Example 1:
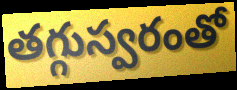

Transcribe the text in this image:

తగ్గుస్వరంతో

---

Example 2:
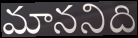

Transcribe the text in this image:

మాననిది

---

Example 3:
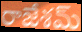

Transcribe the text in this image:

రాజేశమ్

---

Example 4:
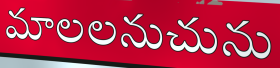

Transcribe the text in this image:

మాలలనుచును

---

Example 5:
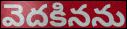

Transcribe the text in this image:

వెదకినను